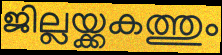
ജില്ലയ്ക്കകത്തും